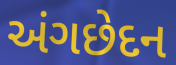
અંગછેદન